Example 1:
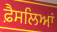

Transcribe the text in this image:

ਫ਼ੈਸਲਿਆਂ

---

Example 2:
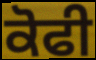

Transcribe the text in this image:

ਕੋਫੀ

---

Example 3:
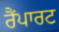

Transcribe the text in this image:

ਰੈਂਪਾਰਟ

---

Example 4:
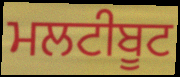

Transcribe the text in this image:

ਮਲਟੀਬੂਟ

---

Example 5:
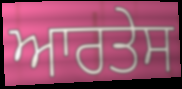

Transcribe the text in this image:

ਆਰਤੇਸ